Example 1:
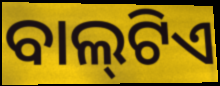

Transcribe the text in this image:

ବାଲ୍‍ଟିଏ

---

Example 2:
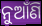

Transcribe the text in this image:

ନୁଆଁଣି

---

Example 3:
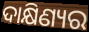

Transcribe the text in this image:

ଦାକ୍ଷିଣ୍ୟର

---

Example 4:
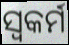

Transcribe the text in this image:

ସ୍ଵକର୍ମ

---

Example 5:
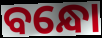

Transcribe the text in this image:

ବନ୍ଧୋ